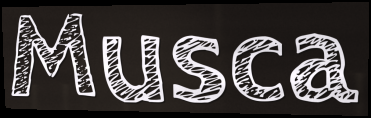
Musca